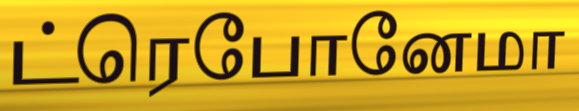
ட்ரெபோனேமா